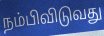
நம்பிவிடுவது